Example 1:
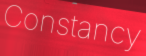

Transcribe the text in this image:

Constancy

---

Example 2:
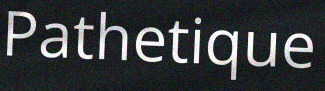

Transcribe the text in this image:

Pathetique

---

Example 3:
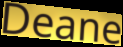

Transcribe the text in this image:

Deane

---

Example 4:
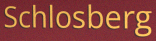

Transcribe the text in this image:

Schlosberg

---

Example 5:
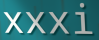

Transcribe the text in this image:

xxxi